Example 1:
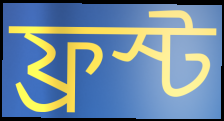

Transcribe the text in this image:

ফ্রস্ট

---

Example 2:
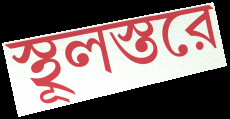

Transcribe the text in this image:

স্থূলস্তরে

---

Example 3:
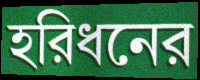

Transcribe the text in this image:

হরিধনের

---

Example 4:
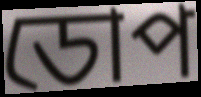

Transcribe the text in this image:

ডোপ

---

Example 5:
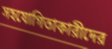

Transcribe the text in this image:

সহযোগিতাকারীদের